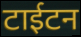
टाईटन